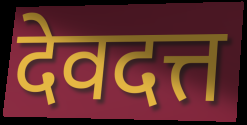
देवदत्त